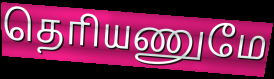
தெரியணுமே